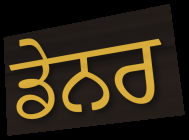
ਡੇਨਰ